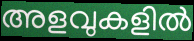
അളവുകളിൽ